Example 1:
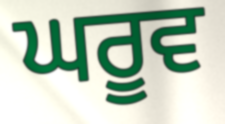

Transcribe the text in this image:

ਘਰੂਵ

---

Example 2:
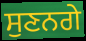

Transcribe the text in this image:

ਸੁਣਨਗੇ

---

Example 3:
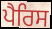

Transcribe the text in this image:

ਪੈਰਿਸ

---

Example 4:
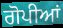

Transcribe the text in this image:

ਗੋਪੀਆਂ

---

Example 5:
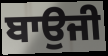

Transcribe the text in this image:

ਬਾਉਜੀ